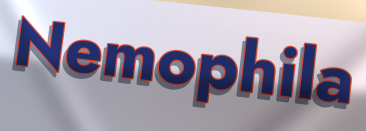
Nemophila